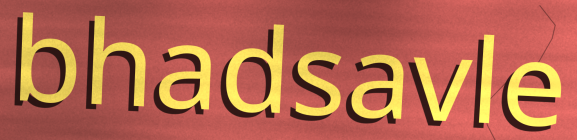
bhadsavle